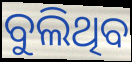
ବୁଲିଥିବ